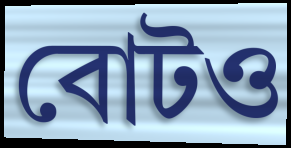
বোটও